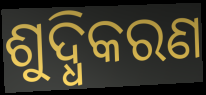
ଶୁଦ୍ଧିକରଣ